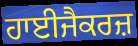
ਹਾਈਜੈਕਰਜ਼